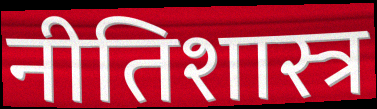
नीतिशास्त्र